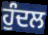
ਹੁੰਦਲ